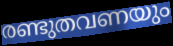
രണ്ടുതവണയും